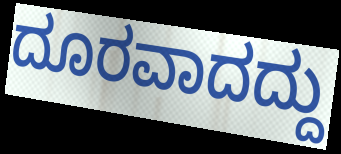
ದೂರವಾದದ್ದು